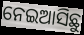
ନେଇଆସିଛୁ